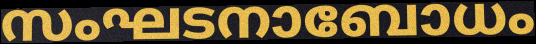
സംഘടനാബോധം